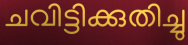
ചവിട്ടിക്കുതിച്ചു